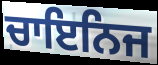
ਚਾਇਨਿਜ